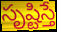
సృష్టిస్తే